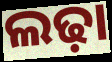
ଲଢ଼ା